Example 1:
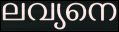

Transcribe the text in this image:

ലവ്യനെ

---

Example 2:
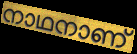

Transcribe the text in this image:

നാഥനാണ്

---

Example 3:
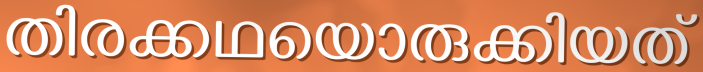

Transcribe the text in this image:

തിരക്കഥയൊരുക്കിയത്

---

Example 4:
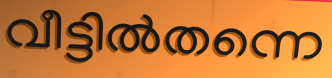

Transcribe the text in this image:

വീട്ടിൽതന്നെ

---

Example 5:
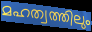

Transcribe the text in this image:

മഹത്വത്തിലും